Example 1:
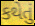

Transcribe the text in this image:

કથેતું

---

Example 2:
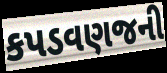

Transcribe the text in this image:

કપડવણજની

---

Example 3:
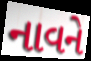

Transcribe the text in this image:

નાવને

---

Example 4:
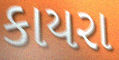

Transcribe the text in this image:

કાયરા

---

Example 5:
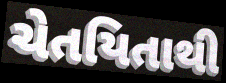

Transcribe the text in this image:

ચેતયિતાથી